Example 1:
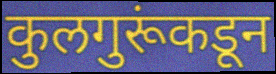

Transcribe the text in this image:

कुलगुरूंकडून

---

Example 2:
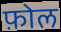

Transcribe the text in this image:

फ़ोल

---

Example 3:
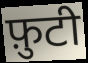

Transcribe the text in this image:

फ़ुटी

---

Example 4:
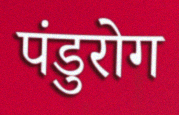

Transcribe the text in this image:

पंडुरोग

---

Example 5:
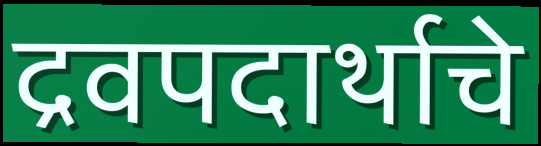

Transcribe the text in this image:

द्रवपदार्थाचे